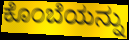
ಕೊಂಬೆಯನ್ನು